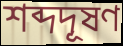
শব্দদূষণ